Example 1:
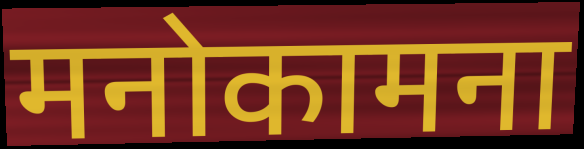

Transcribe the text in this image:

मनोकामना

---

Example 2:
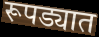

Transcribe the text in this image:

रूपड्यात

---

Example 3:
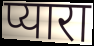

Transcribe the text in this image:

प्यारा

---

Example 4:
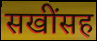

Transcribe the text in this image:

सखींसह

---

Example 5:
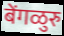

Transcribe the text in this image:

बेंगळुरु